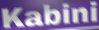
Kabini